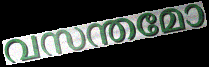
വസന്തമോ